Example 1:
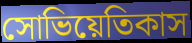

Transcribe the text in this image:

সোভিয়েতিকাস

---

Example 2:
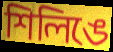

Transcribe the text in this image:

শিলিঙে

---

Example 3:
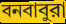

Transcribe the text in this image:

বনবাবুরা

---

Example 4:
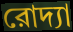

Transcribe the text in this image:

রোদ্যা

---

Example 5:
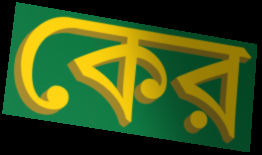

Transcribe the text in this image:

কের